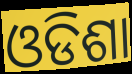
ଓଡିଶା